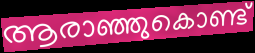
ആരാഞ്ഞുകൊണ്ട്